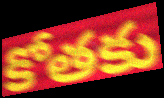
కోతకు